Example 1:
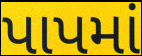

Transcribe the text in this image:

પાપમાં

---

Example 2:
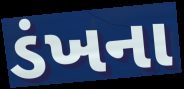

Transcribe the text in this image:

ડંખના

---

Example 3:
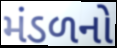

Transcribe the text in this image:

મંડળનો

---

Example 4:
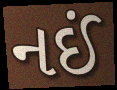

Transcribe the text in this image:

નઈં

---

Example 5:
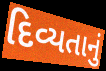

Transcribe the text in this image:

દિવ્યતાનું